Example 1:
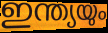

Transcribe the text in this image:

ഇന്ത്യയും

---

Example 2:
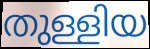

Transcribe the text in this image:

തുള്ളിയ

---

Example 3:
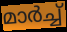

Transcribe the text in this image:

മാർച്ച്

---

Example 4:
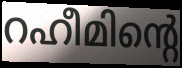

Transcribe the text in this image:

റഹീമിന്റെ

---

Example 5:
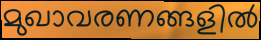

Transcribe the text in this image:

മുഖാവരണങ്ങളിൽ